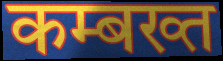
कम्बख्त